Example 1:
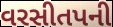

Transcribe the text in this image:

વરસીતપની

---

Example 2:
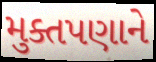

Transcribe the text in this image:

મુક્તપણાને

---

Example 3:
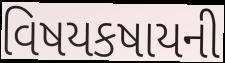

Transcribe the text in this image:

વિષયકષાયની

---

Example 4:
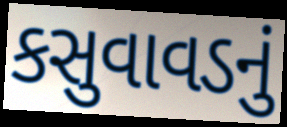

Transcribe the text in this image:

કસુવાવડનું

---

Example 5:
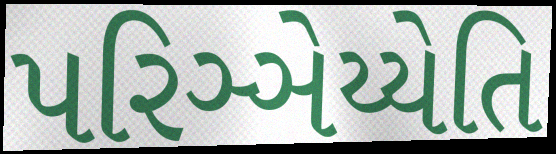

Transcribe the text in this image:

પરિઞ્ઞેય્યેતિ